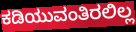
ಕಡಿಯುವಂತಿರಲಿಲ್ಲ